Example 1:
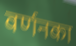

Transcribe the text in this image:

वर्णनका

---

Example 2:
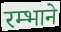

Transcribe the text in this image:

रम्भाने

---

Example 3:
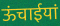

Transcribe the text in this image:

ऊंचाईयां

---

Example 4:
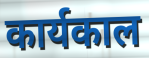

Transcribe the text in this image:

कार्यकाल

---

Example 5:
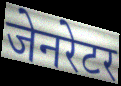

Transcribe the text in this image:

जेनरेटर